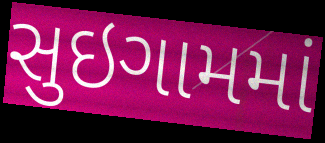
સુઇગામમાં